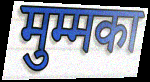
मुम्मका